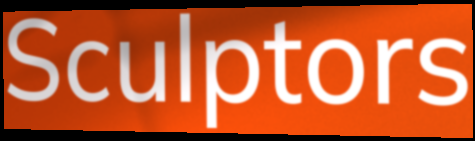
Sculptors